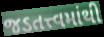
જડતત્ત્વમાંથી